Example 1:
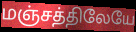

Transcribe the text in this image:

மஞ்சத்திலேயே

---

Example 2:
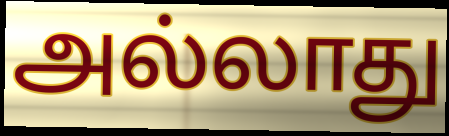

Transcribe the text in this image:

அல்லாது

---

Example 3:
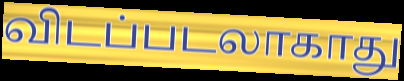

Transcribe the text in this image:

விடப்படலாகாது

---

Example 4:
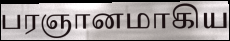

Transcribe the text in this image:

பரஞானமாகிய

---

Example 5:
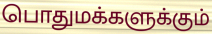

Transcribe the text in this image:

பொதுமக்களுக்கும்